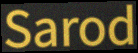
Sarod